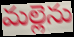
మల్లెను